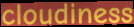
cloudiness